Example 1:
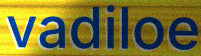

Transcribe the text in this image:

vadiloe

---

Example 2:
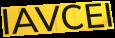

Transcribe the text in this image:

IAVCEI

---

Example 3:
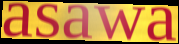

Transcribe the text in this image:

asawa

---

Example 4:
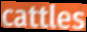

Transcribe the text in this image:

cattles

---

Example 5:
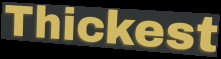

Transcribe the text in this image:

Thickest